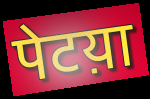
पेटय़ा